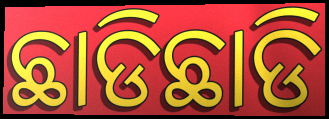
ଛାଡିଛାଡି